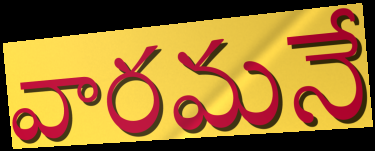
వారమనే